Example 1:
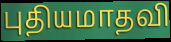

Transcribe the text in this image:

புதியமாதவி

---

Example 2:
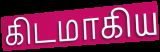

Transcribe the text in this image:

கிடமாகிய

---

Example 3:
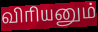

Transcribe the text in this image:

விரியனும்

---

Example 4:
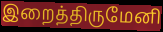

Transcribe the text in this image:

இறைத்திருமேனி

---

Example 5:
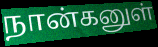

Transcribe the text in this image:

நான்கனுள்